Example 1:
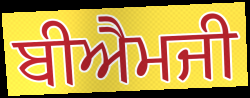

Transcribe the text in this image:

ਬੀਐਮਜੀ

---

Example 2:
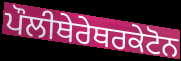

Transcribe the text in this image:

ਪੌਲੀਥੇਰੇਥਰਕੇਟੋਨ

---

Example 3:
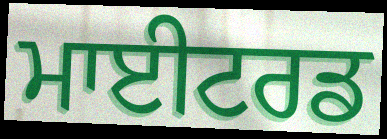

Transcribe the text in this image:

ਮਾਈਟਰਡ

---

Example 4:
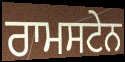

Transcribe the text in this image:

ਰਾਮਸਟੇਨ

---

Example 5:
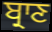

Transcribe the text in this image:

ਬ੍ਰਾਣ